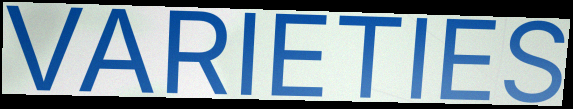
VARIETIES